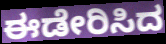
ಈಡೇರಿಸಿದ